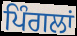
ਪਿੰਗਲਾਂ